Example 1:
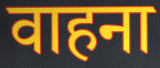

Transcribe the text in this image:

वाहना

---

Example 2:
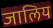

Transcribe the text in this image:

जालिय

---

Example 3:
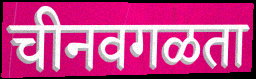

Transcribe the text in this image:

चीनवगळता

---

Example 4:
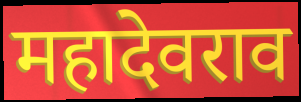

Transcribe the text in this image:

महादेवराव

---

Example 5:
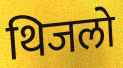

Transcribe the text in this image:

थिजलो